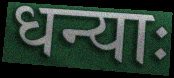
धन्याः